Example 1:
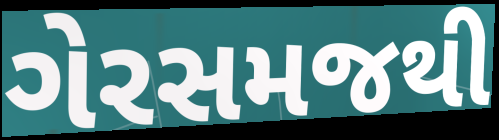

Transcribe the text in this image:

ગેરસમજથી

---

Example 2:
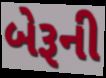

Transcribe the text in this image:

બેરૂની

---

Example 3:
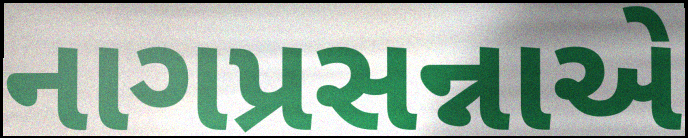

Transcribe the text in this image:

નાગપ્રસન્નાએ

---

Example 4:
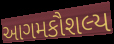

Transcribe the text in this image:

આગમકૌશલ્ય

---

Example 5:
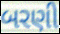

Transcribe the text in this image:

બરણી